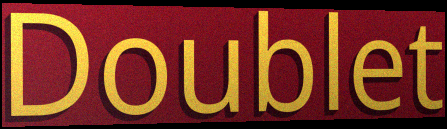
Doublet